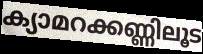
ക്യാമറക്കണ്ണിലൂട